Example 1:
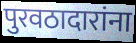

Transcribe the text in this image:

पुरवठादारांना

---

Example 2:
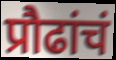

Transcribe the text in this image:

प्रौढांचं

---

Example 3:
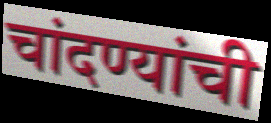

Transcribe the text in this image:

चांदण्यांची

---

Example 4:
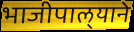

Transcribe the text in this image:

भाजीपाल्याने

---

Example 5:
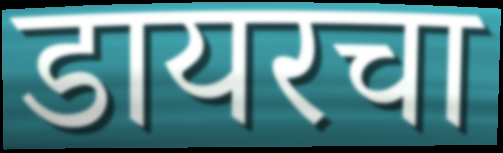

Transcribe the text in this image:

डायरचा